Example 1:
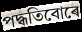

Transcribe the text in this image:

পদ্ধতিবোৰে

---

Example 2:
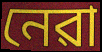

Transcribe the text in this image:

নেৱা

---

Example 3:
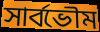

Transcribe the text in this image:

সাৰ্বভৌম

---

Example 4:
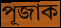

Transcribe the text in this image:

পূজাক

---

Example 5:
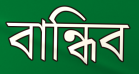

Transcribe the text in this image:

বান্ধিব